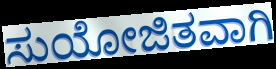
ಸುಯೋಜಿತವಾಗಿ